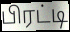
பிரட்டி